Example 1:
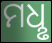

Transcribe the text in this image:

ମଧୢ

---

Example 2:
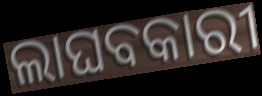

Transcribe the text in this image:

ଲାଘବକାରୀ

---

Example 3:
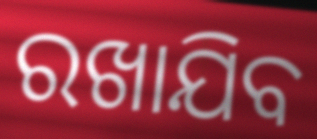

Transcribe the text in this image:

ରଖାଯିବ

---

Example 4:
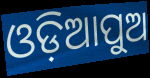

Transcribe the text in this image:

ଓଡ଼ିଆପୁଅ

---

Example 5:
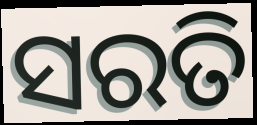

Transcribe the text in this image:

ସରତି